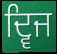
ਦ੍ਵਿਜ